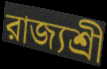
রাজ্যশ্রী